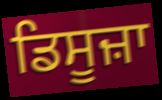
ਡਿਸੂਜ਼ਾ